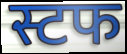
स्टफ